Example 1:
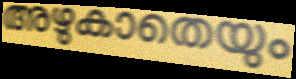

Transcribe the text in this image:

അഴുകാതെയും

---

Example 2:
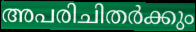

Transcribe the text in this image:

അപരിചിതർക്കും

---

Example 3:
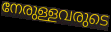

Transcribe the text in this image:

നേരുള്ളവരുടെ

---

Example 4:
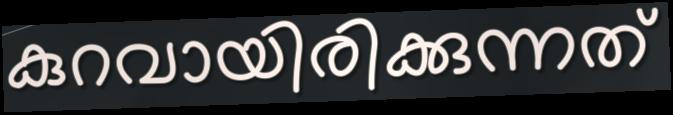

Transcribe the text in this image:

കുറവായിരിക്കുന്നത്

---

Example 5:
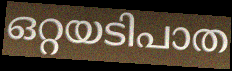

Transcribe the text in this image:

ഒറ്റയടിപാത